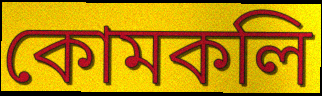
কোমকলি